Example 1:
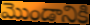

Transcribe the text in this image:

మొండానికి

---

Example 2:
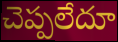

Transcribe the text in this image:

చెప్పలేదూ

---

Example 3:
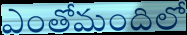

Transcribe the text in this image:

ఎంతోమందిలో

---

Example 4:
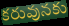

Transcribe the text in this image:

కరువునకు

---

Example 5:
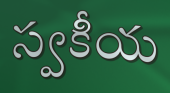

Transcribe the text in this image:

స్వకీయ